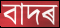
বাদৰ